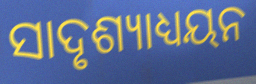
ସାଦୃଶ୍ୟାଧ୍ୟୟନ